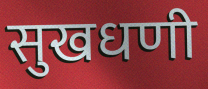
सुखधणी